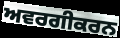
ਅਵਰਗੀਕਰਨ